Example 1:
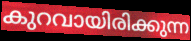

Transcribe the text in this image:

കുറവായിരിക്കുന്ന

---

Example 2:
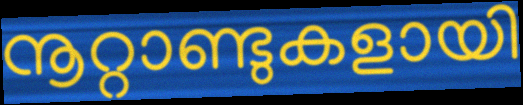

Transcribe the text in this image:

നൂറ്റാണ്ടുകളായി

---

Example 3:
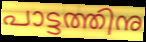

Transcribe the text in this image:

പാട്ടത്തിനു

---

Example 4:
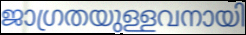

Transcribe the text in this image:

ജാഗ്രതയുള്ളവനായി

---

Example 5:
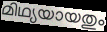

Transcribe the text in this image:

മിഥ്യയായതും